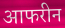
आफरीन